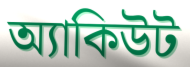
অ্যাকিউট